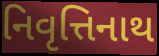
નિવૃત્તિનાથ